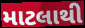
માટલાથી